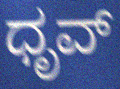
ಧೃವ್